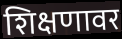
शिक्षणावर